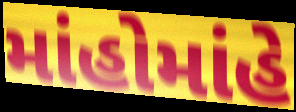
માંહોમાંહે